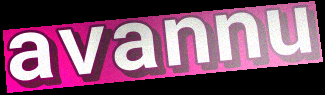
avannu